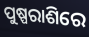
ପୁଷ୍ପରାଶିରେ